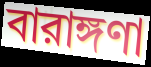
বারাঙ্গণা